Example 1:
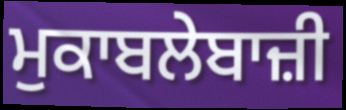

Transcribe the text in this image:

ਮੁਕਾਬਲੇਬਾਜ਼ੀ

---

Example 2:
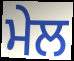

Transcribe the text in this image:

ਮੇਲ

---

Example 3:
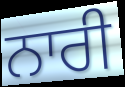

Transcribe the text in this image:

ਨਾਰੀ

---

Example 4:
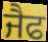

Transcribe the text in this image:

ਜੈਫ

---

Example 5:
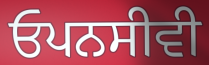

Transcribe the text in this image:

ਓਪਨਸੀਵੀ